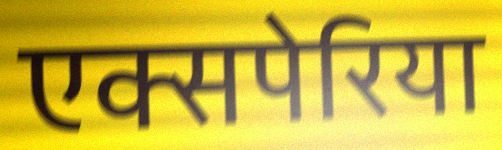
एक्सपेरिया